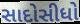
સાદોસીધો